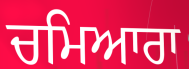
ਚਮਿਆਰਾ